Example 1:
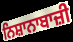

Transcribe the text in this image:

ਨਿਸ਼ਾਨਾਬਾਜ਼ੀ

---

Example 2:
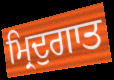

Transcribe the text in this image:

ਮ੍ਰਿਦੁਗਾਤ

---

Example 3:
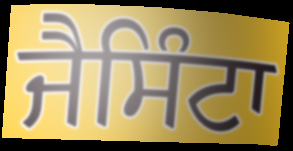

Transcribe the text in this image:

ਜੈਸਿੰਟਾ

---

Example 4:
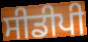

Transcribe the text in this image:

ਸੀਡੀਪੀ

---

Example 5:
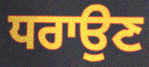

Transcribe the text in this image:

ਧਰਾਉਣ